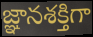
జ్ఞానశక్తిగా